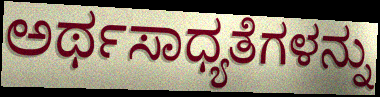
ಅರ್ಥಸಾಧ್ಯತೆಗಳನ್ನು